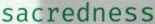
sacredness